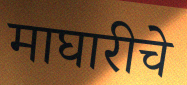
माघारीचे